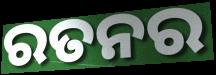
ରତନର